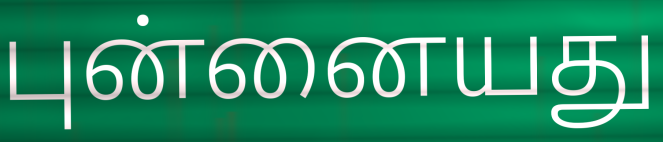
புன்னையது